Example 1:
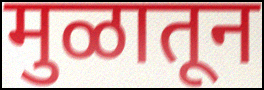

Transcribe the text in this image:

मुळातून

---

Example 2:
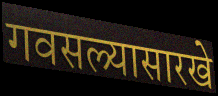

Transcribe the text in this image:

गवसल्यासारखे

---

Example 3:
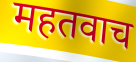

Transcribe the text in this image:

महतवाच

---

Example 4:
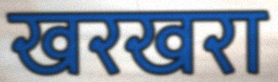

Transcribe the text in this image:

खरखरा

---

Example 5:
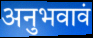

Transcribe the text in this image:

अनुभवावं